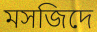
মসজিদে